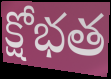
క్షోభత